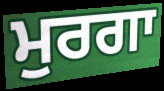
ਮੁਰਗਾ